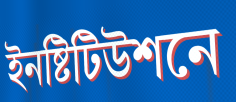
ইনষ্টিটিউশনে